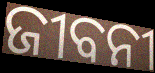
ଜୀବନୀ